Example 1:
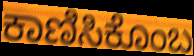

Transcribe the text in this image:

ಕಾಣಿಸಿಕೊಂಬ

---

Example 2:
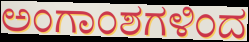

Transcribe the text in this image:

ಅಂಗಾಂಶಗಳಿಂದ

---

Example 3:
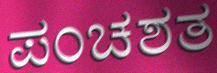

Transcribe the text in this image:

ಪಂಚಶತ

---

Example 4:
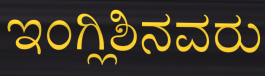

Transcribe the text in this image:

ಇಂಗ್ಲಿಶಿನವರು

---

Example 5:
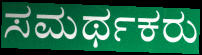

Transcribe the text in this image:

ಸಮರ್ಥಕರು